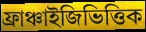
ফ্রাঞ্চাইজিভিত্তিক